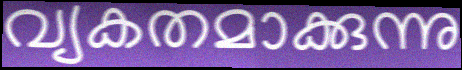
വ്യകതമാക്കുന്നു